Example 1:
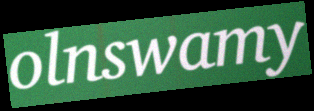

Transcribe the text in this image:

olnswamy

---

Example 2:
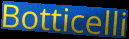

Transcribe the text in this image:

Botticelli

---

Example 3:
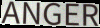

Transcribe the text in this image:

ANGER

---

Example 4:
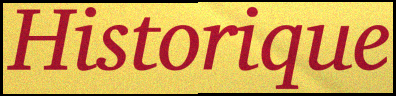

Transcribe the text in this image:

Historique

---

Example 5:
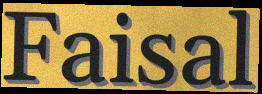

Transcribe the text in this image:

Faisal